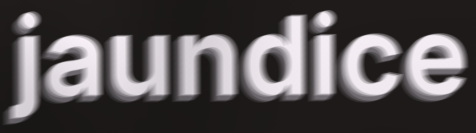
jaundice